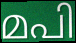
മപി